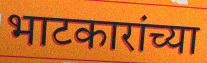
भाटकारांच्या